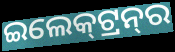
ଇଲେକ୍‍ଟ୍ରନ୍‍ର